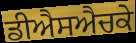
ਡੀਐਸਐਚਕੇ